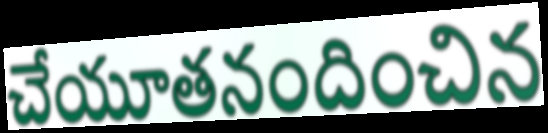
చేయూతనందించిన